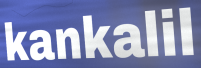
kankalil